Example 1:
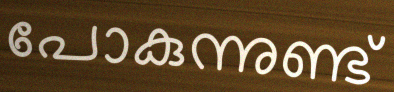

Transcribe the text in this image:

പോകുന്നുണ്ട്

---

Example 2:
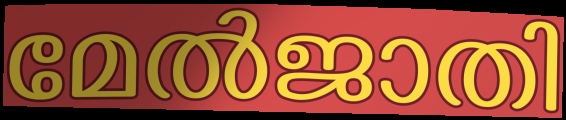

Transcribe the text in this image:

മേൽജാതി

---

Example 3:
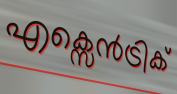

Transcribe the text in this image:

എക്സെൻട്രിക്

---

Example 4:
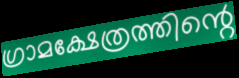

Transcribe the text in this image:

ഗ്രാമക്ഷേത്രത്തിന്റെ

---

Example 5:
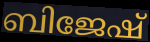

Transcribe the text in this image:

ബിജേഷ്